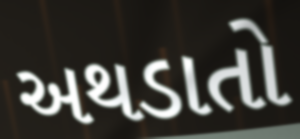
અથડાતો